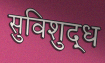
सुविशुद्ध